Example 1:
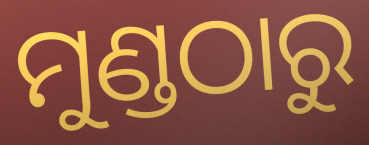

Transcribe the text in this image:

ମୁଣ୍ଡଠାରୁ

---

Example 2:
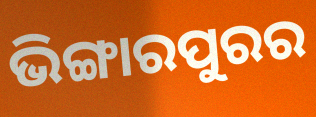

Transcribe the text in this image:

ଭିଙ୍ଗାରପୁରର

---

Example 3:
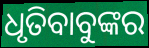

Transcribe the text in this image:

ଧୃତିବାବୁଙ୍କର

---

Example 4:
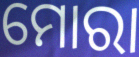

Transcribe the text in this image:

ମୋରା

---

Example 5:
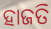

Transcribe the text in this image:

ହାଜତି